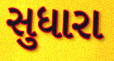
સુધારા